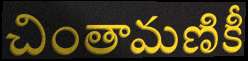
చింతామణికీ